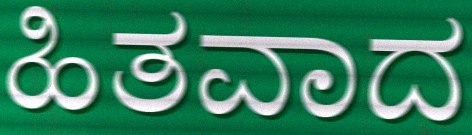
ಹಿತವಾದ